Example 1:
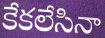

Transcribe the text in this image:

కేకలేసినా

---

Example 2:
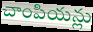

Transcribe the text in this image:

చాంపియన్లు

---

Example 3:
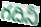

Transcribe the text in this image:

గదినీ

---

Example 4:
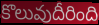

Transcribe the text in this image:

కొలువుదీరింది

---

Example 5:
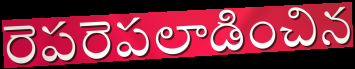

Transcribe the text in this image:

రెపరెపలాడించిన